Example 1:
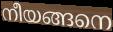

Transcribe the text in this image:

നീയങ്ങനെ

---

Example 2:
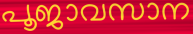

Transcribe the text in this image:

പൂജാവസാന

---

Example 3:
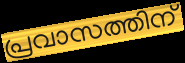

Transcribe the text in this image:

പ്രവാസത്തിന്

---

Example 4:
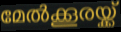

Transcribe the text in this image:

മേൽക്കൂരയ്ക്ക്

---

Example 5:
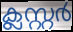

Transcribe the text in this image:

ക്ലസ്റ്റർ